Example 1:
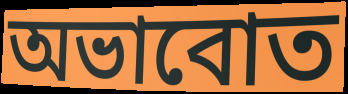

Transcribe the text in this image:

অভাবোত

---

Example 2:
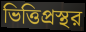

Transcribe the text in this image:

ভিত্তিপ্রস্থর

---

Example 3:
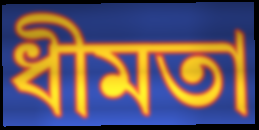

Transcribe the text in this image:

ধীমতা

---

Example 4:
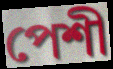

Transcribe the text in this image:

পেশী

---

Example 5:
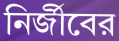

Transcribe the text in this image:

নির্জীবের